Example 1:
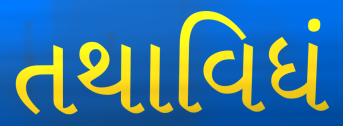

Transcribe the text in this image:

તથાવિધં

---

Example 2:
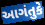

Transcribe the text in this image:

આગંતુકે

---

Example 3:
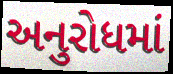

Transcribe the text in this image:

અનુરોધમાં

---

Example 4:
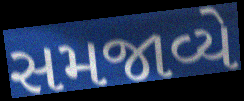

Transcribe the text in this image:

સમજાવ્યે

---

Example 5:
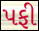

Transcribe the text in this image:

પફી